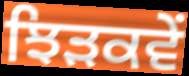
ਝਿੜਕਵੇਂ